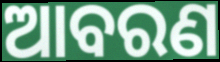
ଆବରଣ